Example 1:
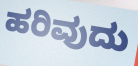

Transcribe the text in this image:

ಹರಿವುದು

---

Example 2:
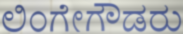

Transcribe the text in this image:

ಲಿಂಗೇಗೌಡರು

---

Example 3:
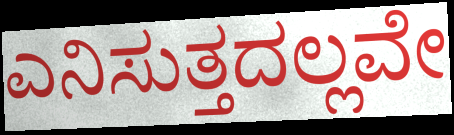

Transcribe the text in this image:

ಎನಿಸುತ್ತದಲ್ಲವೇ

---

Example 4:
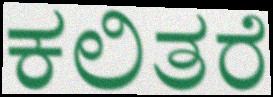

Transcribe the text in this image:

ಕಲಿತರೆ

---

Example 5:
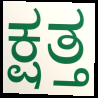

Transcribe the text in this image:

ಕ್ಷತ್ತ